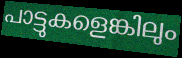
പാട്ടുകളെങ്കിലും